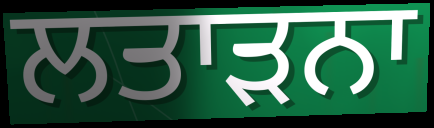
ਲਤਾੜਨਾ